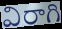
విరాగి